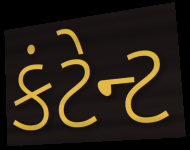
કંટેન્ટ